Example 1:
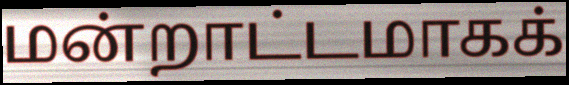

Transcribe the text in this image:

மன்றாட்டமாகக்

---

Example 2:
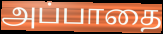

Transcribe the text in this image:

அப்பாதை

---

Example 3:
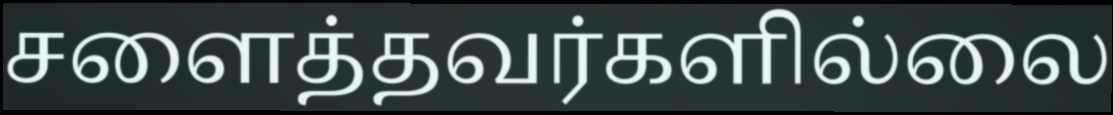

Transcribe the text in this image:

சளைத்தவர்களில்லை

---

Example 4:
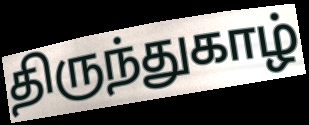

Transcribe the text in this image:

திருந்துகாழ்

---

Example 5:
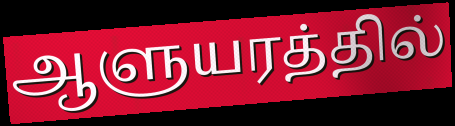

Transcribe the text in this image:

ஆளுயரத்தில்